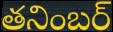
తనింబర్